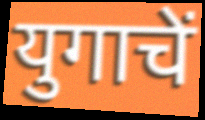
युगाचें